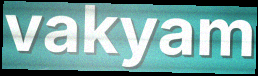
vakyam